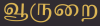
வூருறை